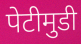
पेटीमुडी